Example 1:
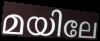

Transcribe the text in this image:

മയിലേ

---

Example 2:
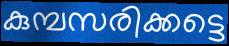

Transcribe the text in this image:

കുമ്പസരിക്കട്ടെ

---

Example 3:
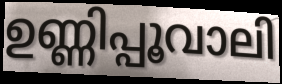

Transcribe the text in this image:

ഉണ്ണിപ്പൂവാലി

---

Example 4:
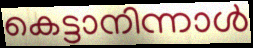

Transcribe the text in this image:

കെട്ടാനിന്നാൾ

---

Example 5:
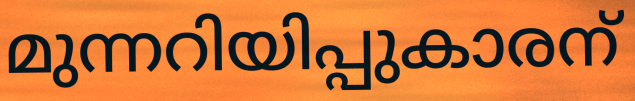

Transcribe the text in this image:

മുന്നറിയിപ്പുകാരന്